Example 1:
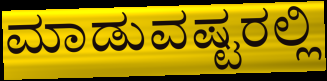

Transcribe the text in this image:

ಮಾಡುವಷ್ಟರಲ್ಲಿ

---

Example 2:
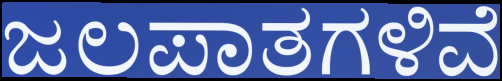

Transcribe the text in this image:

ಜಲಪಾತಗಳಿವೆ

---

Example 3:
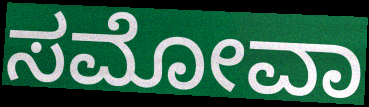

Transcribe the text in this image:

ಸಮೋವಾ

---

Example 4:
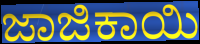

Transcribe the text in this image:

ಜಾಜಿಕಾಯಿ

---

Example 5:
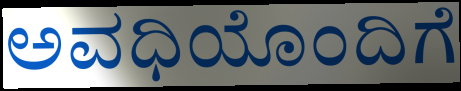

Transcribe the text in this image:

ಅವಧಿಯೊಂದಿಗೆ